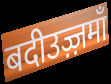
बदीउज़्ज़माँ